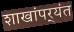
शाखांपर्यंत